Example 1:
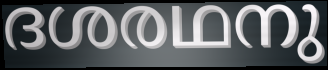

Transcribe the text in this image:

ദശരഥനു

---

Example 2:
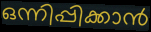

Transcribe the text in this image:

ഒന്നിപ്പിക്കാൻ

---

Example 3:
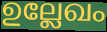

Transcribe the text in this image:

ഉല്ലേഖം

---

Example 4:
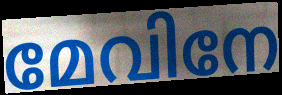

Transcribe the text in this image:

മേവിനേ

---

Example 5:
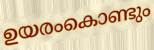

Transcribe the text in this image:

ഉയരംകൊണ്ടും